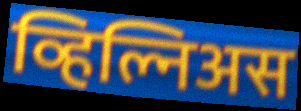
व्हिल्निअस